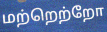
மற்றெற்றோ